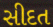
સીદત